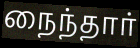
நைந்தார்